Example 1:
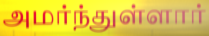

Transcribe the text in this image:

அமர்ந்துள்ளார்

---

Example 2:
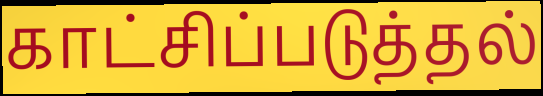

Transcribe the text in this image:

காட்சிப்படுத்தல்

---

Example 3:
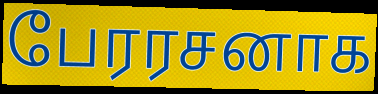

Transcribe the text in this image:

பேரரசனாக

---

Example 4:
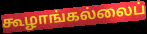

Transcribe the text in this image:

கூழாங்கல்லைப்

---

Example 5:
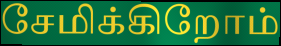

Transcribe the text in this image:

சேமிக்கிறோம்